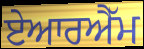
ਏਆਰਐੱਮ